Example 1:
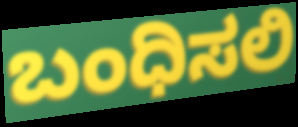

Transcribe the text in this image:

ಬಂಧಿಸಲಿ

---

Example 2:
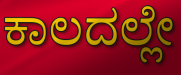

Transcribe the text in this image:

ಕಾಲದಲ್ಲೇ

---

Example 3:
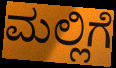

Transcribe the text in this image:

ಮಲ್ಲಿಗೆ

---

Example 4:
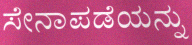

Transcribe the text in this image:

ಸೇನಾಪಡೆಯನ್ನು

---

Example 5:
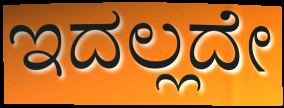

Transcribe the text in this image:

ಇದಲ್ಲದೇ